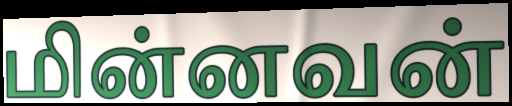
மின்னவன்